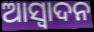
ଆସ୍ଵାଦନ